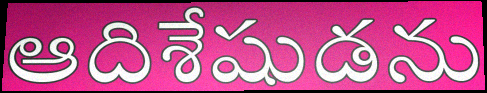
ఆదిశేషుడను